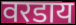
वरडाय